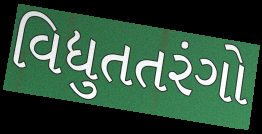
વિદ્યુતતરંગો